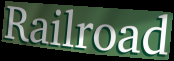
Railroad